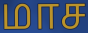
மாச